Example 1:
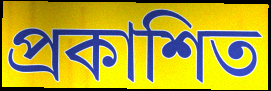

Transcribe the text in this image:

প্ৰকাশিত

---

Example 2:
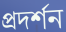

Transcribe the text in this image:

প্ৰদৰ্শন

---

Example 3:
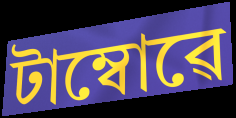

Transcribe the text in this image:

টাম্বোৱে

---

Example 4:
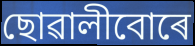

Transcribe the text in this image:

ছোৱালীবোৰে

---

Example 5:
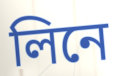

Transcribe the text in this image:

লিনে